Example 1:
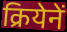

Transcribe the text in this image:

क्रियेनें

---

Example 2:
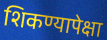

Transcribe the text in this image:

शिकण्यापेक्षा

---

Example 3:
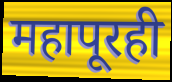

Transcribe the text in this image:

महापूरही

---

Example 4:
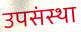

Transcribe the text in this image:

उपसंस्था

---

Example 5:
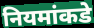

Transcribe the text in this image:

नियमांकडे